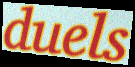
duels